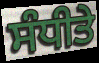
ਸੰਧੀਤੇ